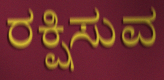
ರಕ್ಷಿಸುವ